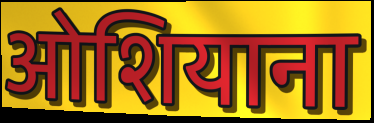
ओशियाना